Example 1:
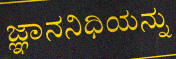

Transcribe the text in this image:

ಜ್ಞಾನನಿಧಿಯನ್ನು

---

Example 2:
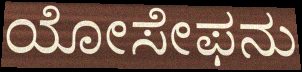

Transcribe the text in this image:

ಯೋಸೇಫನು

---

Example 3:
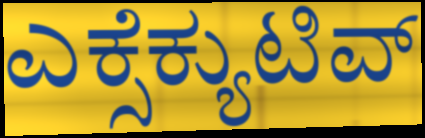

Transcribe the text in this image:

ಎಕ್ಸೆಕ್ಯುಟಿವ್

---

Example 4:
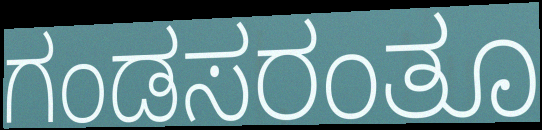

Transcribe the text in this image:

ಗಂಡಸರಂತೂ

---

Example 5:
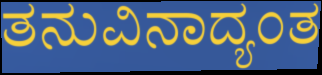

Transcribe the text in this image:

ತನುವಿನಾದ್ಯಂತ